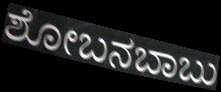
ಶೋಬನಬಾಬು